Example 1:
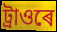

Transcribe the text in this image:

ট্ৰাওৰে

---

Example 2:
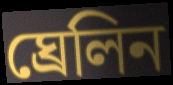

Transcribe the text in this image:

ঘ্ৰেলিন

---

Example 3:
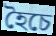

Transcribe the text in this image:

হৈচে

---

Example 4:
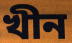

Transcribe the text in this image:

খীন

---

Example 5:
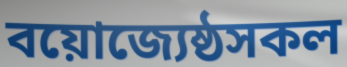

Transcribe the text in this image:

বয়োজ্যেষ্ঠসকল